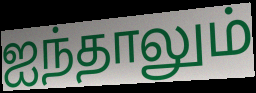
ஐந்தாலும்